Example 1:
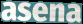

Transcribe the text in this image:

asena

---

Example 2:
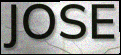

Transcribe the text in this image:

JOSE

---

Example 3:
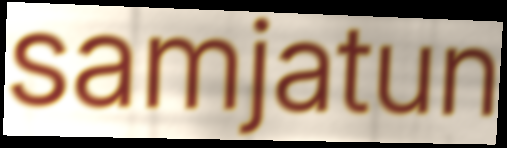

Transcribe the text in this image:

samjatun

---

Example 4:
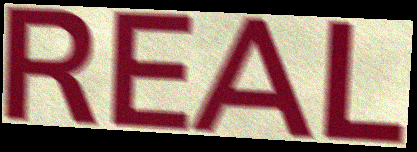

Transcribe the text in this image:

REAL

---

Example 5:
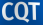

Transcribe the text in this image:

CQT